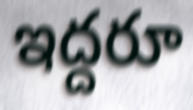
ఇద్దరూ